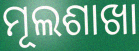
ମୂଲଶାଖା